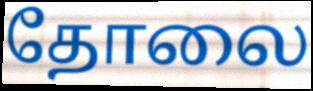
தோலை